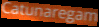
Catunaregam